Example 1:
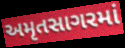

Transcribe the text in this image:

અમૃતસાગરમાં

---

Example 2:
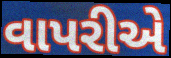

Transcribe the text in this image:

વાપરીએ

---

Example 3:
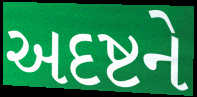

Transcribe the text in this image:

અદષ્ટને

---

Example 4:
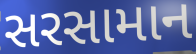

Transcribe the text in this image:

સરસામાન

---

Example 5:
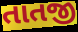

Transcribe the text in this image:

તાતજી